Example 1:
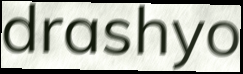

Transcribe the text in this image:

drashyo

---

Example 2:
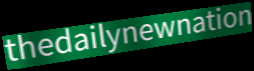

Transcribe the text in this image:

thedailynewnation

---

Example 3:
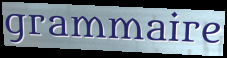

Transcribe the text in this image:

grammaire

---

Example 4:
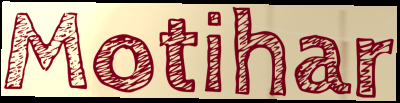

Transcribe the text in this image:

Motihar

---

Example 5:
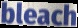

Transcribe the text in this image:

bleach